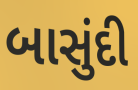
બાસુંદી